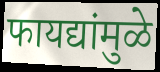
फायद्यांमुळे